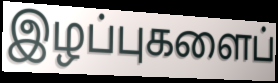
இழப்புகளைப்